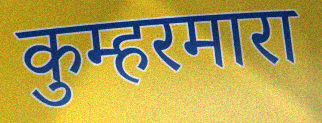
कुम्हरमारा